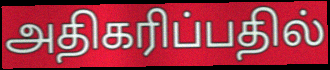
அதிகரிப்பதில்